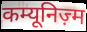
कम्यूनिज़्म